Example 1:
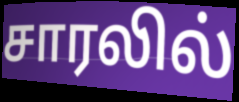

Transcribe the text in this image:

சாரலில்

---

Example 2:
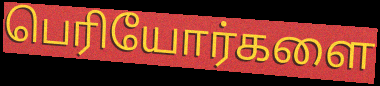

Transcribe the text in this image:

பெரியோர்களை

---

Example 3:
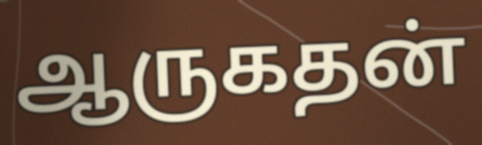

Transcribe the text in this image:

ஆருகதன்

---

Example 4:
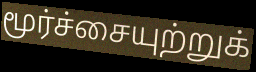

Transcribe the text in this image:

மூர்ச்சையுற்றுக்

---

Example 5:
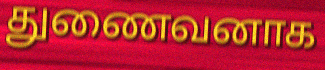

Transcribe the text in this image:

துணைவனாக